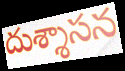
దుశ్శాసన